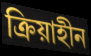
ক্রিয়াহীন